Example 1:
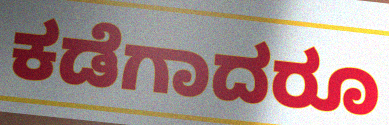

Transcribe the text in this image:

ಕಡೆಗಾದರೂ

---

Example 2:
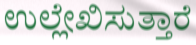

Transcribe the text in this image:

ಉಲ್ಲೇಖಿಸುತ್ತಾರೆ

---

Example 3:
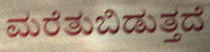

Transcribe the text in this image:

ಮರೆತುಬಿಡುತ್ತದೆ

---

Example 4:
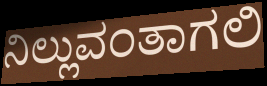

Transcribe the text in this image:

ನಿಲ್ಲುವಂತಾಗಲಿ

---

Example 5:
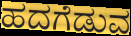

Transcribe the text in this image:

ಹದಗೆಡುವ